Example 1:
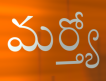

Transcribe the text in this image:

మర్త్యో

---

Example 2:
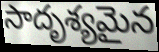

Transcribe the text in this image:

సాదృశ్యమైన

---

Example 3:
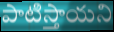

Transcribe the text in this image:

పాటిస్తాయని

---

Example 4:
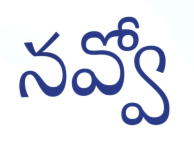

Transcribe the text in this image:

నవ్వో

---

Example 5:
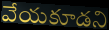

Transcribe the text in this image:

వేయకూడని